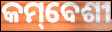
କମ୍‌ବେଶୀ